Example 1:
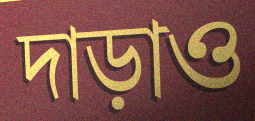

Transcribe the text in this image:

দাড়াও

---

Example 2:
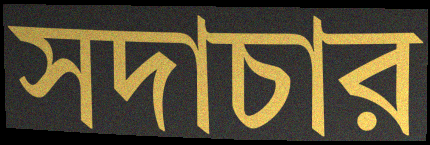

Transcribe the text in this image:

সদাচার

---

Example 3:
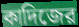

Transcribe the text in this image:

কাদিজের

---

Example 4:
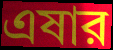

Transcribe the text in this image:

এষার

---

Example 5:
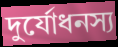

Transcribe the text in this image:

দুর্যোধনস্য